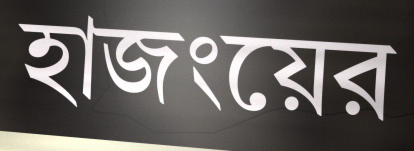
হাজংয়ের